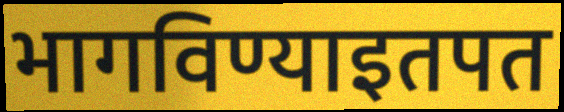
भागविण्याइतपत